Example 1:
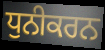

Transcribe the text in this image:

ਧੁਨੀਕਰਨ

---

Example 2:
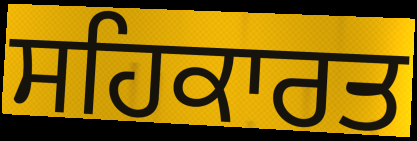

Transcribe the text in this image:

ਸਹਿਕਾਰਤ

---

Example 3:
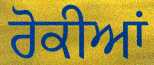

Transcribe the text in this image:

ਰੋਕੀਆਂ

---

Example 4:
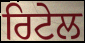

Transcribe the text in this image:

ਰਿਟੇਲ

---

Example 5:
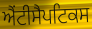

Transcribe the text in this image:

ਐਂਟੀਸੈਪਟਿਕਸ